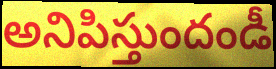
అనిపిస్తుందండీ